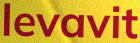
levavit